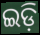
ଇଡ଼ି